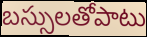
బస్సులతోపాటు